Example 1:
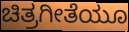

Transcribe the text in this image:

ಚಿತ್ರಗೀತೆಯೂ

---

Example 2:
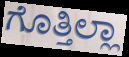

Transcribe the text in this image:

ಗೊತ್ತಿಲ್ಲಾ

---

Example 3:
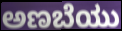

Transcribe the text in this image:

ಅಣಬೆಯು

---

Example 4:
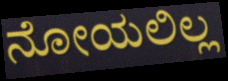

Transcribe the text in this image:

ನೋಯಲಿಲ್ಲ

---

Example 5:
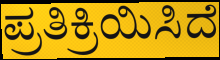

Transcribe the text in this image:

ಪ್ರತಿಕ್ರಿಯಿಸಿದೆ